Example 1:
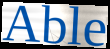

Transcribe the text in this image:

Able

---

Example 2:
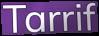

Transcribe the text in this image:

Tarrif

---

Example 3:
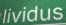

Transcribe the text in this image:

lividus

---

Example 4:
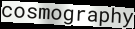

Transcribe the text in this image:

cosmography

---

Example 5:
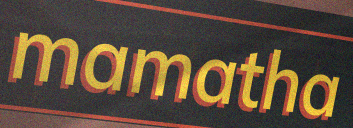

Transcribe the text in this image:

mamatha